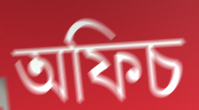
অফিচ